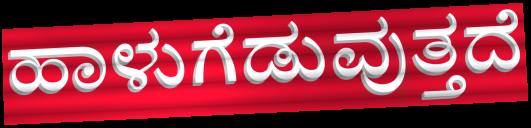
ಹಾಳುಗೆಡುವುತ್ತದೆ